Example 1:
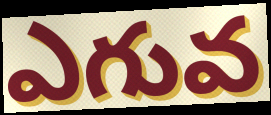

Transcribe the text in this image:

ఎగువ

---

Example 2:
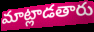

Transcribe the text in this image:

మాట్లాడతారు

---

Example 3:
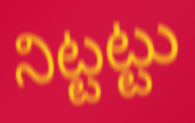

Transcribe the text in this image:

నిట్టట్టు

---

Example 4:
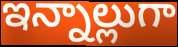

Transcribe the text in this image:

ఇన్నాల్లుగా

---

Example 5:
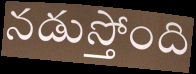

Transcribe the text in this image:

నడుస్తోంది